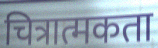
चित्रात्मकता